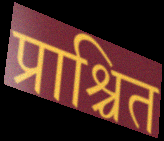
प्राश्चित